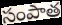
సంపాత